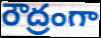
రౌద్రంగా